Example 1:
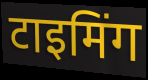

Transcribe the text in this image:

टाइमिंग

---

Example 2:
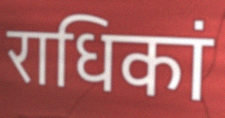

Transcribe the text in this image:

राधिकां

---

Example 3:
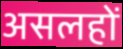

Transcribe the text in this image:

असलहों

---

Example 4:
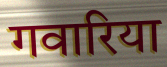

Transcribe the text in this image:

गवारिया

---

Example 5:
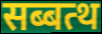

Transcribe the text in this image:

सब्बत्थ